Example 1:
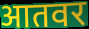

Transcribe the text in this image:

आतवर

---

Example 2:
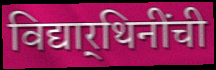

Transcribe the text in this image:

विद्यार्थिनींची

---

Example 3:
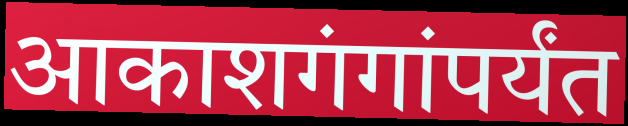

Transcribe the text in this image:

आकाशगंगांपर्यंत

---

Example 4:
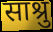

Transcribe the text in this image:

साश्रु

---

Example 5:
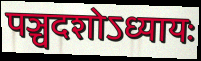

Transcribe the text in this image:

पञ्चदशोऽध्यायः